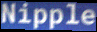
Nipple